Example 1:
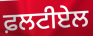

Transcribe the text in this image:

ਫ਼ਲਟੀਏਲ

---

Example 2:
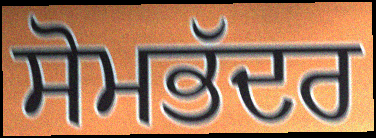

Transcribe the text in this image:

ਸੋਮਭੱਦਰ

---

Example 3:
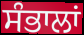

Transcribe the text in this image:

ਸੰਭਾਲਾਂ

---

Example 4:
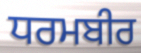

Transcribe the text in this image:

ਧਰਮਬੀਰ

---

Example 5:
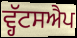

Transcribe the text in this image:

ਵ੍ਹੱਟਸਐਪ